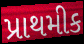
પ્રાથમીક